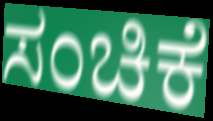
ಸಂಚಿಕೆ